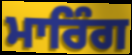
ਮਾਰਿੰਗ